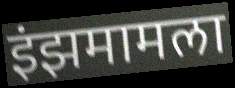
इंझमामला